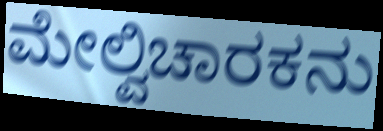
ಮೇಲ್ವಿಚಾರಕನು